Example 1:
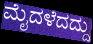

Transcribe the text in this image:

ಮೈದಳೆದದ್ದು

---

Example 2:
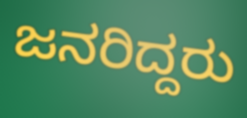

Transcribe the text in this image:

ಜನರಿದ್ದರು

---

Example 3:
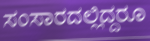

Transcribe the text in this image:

ಸಂಸಾರದಲ್ಲಿದ್ದರೂ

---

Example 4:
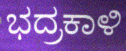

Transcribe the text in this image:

ಭದ್ರಕಾಳಿ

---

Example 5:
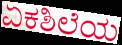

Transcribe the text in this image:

ಏಕಶಿಲೆಯ